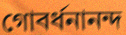
গোবর্ধনানন্দ